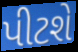
પીટશે